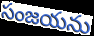
సంజయను